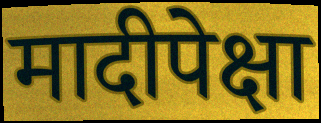
मादीपेक्षा